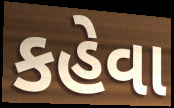
કહેવા